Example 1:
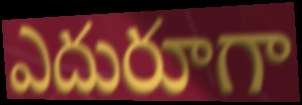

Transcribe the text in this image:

ఎదురూగా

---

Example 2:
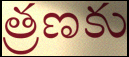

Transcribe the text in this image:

త్రణకు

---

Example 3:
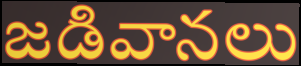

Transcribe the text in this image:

జడివానలు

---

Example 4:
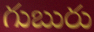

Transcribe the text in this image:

గుబురు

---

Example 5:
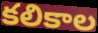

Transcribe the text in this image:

కలికాల